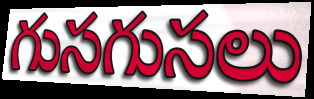
గుసగుసలు